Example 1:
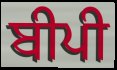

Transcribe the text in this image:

ਬੀਪੀ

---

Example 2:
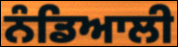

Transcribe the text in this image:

ਨੰਡਿਆਲੀ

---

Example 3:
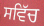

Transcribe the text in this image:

ਸਵਿੱਚ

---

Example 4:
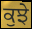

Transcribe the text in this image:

ਕੁਝੇ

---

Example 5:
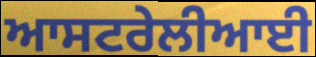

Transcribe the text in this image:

ਆਸਟਰੇਲੀਆਈ